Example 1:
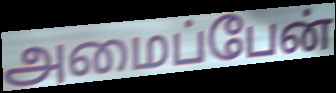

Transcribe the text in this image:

அமைப்பேன்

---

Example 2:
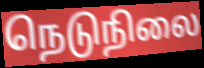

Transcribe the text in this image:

நெடுநிலை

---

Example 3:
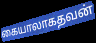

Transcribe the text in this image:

கையாலாகதவன்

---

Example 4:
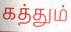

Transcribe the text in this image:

கத்தும்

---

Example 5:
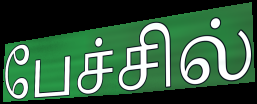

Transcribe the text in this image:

பேச்சில்